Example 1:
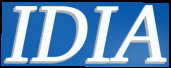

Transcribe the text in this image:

IDIA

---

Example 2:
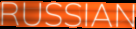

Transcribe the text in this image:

RUSSIAN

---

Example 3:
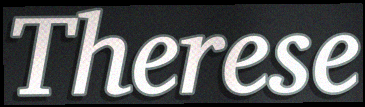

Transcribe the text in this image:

Therese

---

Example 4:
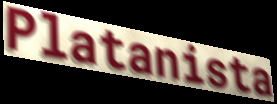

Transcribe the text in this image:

Platanista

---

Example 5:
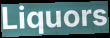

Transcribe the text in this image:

Liquors